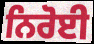
ਨਿਰੋਈ